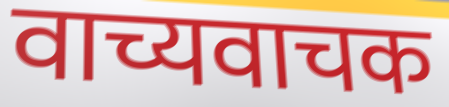
वाच्यवाचक